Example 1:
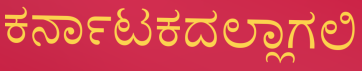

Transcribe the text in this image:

ಕರ್ನಾಟಕದಲ್ಲಾಗಲಿ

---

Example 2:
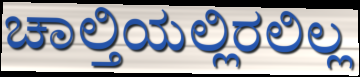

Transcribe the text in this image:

ಚಾಲ್ತಿಯಲ್ಲಿರಲಿಲ್ಲ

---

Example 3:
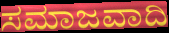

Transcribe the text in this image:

ಸಮಾಜವಾದಿ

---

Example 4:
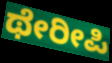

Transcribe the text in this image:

ಥೇರೀಪಿ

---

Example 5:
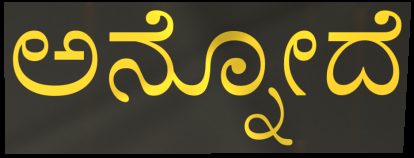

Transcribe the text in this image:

ಅನ್ನೋದೆ